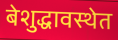
बेशुद्धावस्थेत